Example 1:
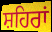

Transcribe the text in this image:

ਸ਼ਹਿਰਾਂ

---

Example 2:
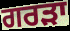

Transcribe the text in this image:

ਗਰੜਾ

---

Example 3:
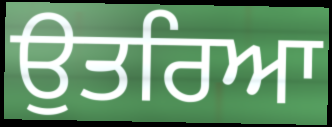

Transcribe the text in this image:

ਉਤਰਿਆ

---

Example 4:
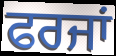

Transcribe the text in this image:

ਫਰਜਾਂ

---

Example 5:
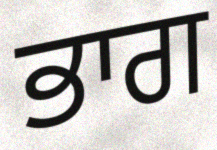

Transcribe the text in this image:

ਭਾਗ